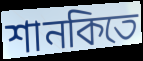
শানকিতে